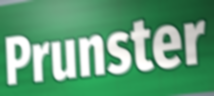
Prunster